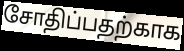
சோதிப்பதற்காக